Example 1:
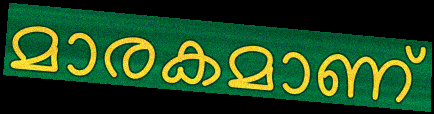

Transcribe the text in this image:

മാരകമാണ്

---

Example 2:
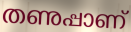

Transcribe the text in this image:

തണുപ്പാണ്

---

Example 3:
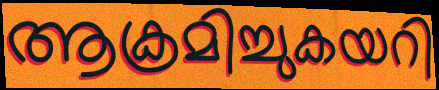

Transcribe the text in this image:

ആക്രമിച്ചുകയറി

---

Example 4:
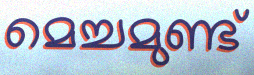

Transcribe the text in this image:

മെച്ചമുണ്ട്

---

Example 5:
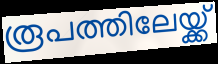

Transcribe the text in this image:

രൂപത്തിലേയ്ക്ക്